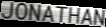
JONATHAN